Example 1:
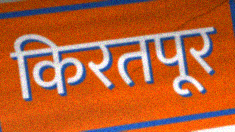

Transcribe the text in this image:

किरतपूर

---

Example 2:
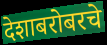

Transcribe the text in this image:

देशाबरोबरचे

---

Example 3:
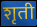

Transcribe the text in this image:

शृती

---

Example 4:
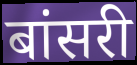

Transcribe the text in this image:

बांसरी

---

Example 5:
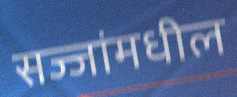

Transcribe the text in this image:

सज्जांमधील